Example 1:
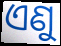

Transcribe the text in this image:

ଏଣୁ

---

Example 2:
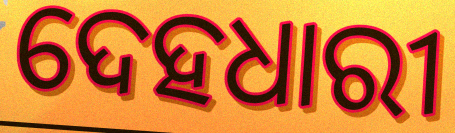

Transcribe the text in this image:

ଦେହଧାରୀ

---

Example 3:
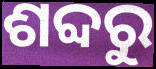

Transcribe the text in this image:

ଶବ୍ଦରୁ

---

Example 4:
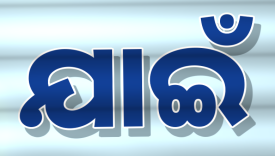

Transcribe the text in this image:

ଯାଇଁ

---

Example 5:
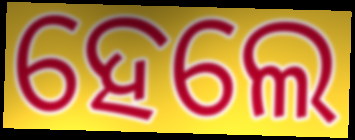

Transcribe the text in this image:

ହେଲେ